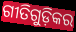
ଗୀତିଗୁଡ଼ିକର